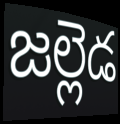
జల్లెడ